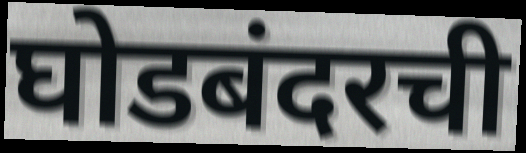
घोडबंदरची